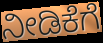
ನೀಡಿಕೆಗೆ